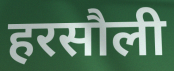
हरसौली